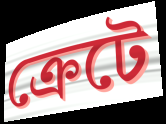
ক্রেটে